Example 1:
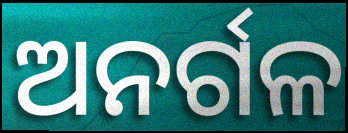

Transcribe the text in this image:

ଅନର୍ଗଳ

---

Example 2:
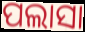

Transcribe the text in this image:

ପଲାସା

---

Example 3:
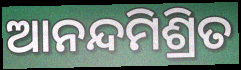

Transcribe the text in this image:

ଆନନ୍ଦମିଶ୍ରିତ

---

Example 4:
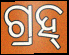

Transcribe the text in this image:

ଗ୍ରହ୍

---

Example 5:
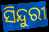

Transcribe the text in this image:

ସିନ୍ଦୁରୀ